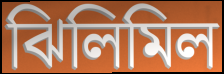
ঝিলিমিল